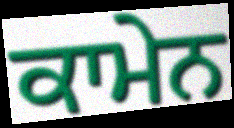
ਕਾਮੇਨ